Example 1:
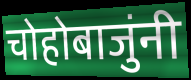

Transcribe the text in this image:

चोहोबाजुंनी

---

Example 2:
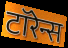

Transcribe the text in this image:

टॉरेन्स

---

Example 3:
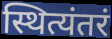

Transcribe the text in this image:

स्थित्यंतरं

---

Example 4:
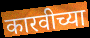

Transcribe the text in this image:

कारवीच्या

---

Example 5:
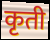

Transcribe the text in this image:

कृती